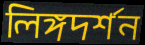
লিঙ্গদর্শন